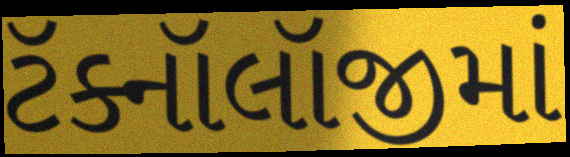
ટૅક્નૉલૉજીમાં